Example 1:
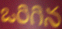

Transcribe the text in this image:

ఒరిగిన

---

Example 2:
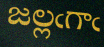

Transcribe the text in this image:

జల్లఁగాఁ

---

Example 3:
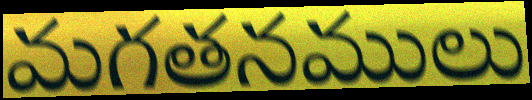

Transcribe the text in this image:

మగతనములు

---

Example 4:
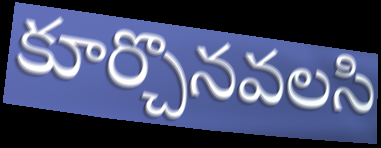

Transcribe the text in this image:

కూర్చొనవలసి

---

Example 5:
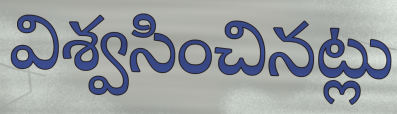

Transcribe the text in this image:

విశ్వసించినట్లు